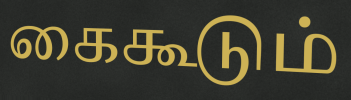
கைகூடும்